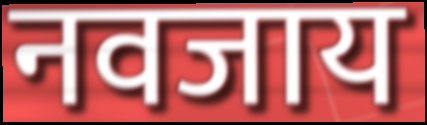
नवजाय